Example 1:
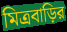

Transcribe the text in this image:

মিত্রবাড়ির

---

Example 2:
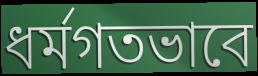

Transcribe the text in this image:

ধর্মগতভাবে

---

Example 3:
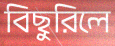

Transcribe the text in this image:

বিছুরিলে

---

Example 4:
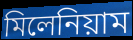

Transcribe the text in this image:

মিলেনিয়াম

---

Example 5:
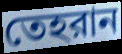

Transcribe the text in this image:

তেহরান